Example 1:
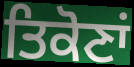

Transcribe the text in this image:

ਤਿਕੋਣਾਂ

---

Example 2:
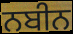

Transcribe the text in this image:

ਨਬੀਨ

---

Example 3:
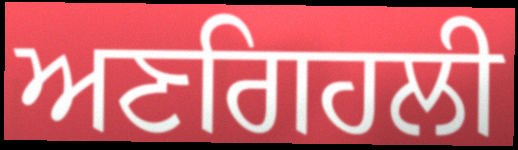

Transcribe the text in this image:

ਅਣਗਿਹਲੀ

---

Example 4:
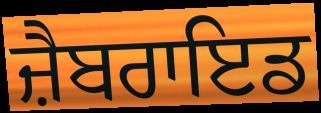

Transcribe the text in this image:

ਜ਼ੈਬਰਾਇਡ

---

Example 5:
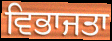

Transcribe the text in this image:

ਵਿਭਾਜਤਾ